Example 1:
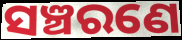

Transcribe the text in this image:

ସଞ୍ଚରଣେ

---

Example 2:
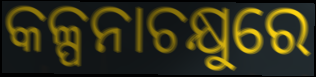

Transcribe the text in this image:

କଳ୍ପନାଚକ୍ଷୁରେ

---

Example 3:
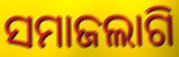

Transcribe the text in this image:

ସମାଜଲାଗି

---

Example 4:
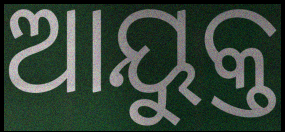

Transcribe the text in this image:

ଆୟୁକ୍ତ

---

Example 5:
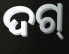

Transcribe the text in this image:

ଦଗ୍